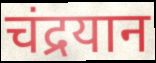
चंद्रयान